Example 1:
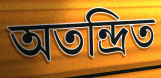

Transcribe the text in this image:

অতন্দ্রিত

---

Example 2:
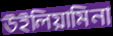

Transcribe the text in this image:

উইলিয়ামিনা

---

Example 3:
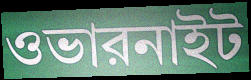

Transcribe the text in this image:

ওভারনাইট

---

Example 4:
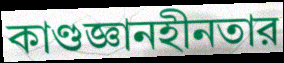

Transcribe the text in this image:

কাণ্ডজ্ঞানহীনতার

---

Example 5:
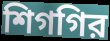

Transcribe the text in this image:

শিগগির